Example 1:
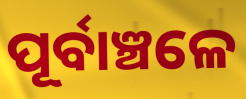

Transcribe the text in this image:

ପୂର୍ବାଞ୍ଚଳେ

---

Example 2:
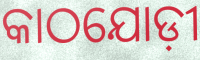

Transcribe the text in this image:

କାଠଯୋଡ଼ୀ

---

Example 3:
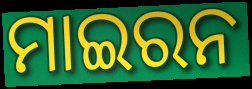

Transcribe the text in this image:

ମାଇରନ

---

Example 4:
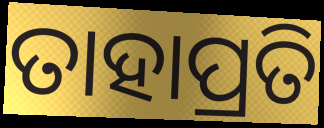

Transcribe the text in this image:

ତାହାପ୍ରତି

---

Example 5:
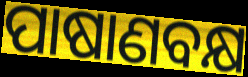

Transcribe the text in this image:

ପାଷାଣବକ୍ଷ